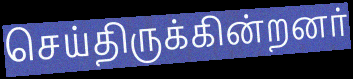
செய்திருக்கின்றனர்